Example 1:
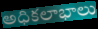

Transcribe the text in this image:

అధికలాభాలు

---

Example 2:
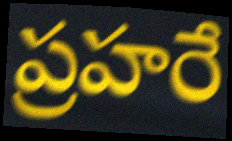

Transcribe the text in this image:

ప్రహరే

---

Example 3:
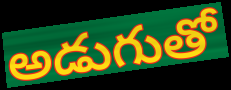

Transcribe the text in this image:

అడుగుతో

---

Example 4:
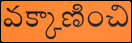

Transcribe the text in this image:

వక్కాణించి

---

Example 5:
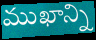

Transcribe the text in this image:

ముఖాన్ని